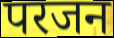
परजन